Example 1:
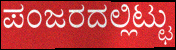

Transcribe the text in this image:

ಪಂಜರದಲ್ಲಿಟ್ಟು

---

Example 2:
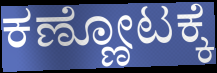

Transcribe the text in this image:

ಕಣ್ಣೋಟಕ್ಕೆ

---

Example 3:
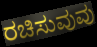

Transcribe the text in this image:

ರಚಿಸುವುವು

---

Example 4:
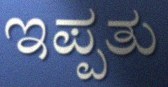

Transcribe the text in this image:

ಇಪ್ಪತು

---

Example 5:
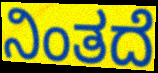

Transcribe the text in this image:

ನಿಂತದೆ